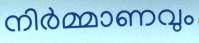
നിർമ്മാണവും